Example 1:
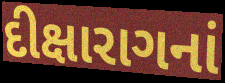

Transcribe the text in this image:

દીક્ષારાગનાં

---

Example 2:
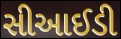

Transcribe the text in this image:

સીઆઈડી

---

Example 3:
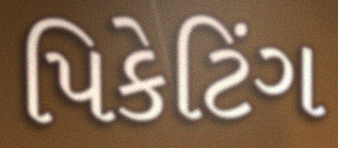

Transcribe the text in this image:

પિકેટિંગ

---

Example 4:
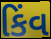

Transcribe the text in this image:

કિંવ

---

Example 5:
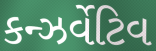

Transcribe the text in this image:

કન્ઝર્વેટિવ